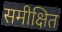
समीक्षित